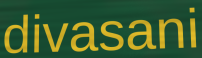
divasani